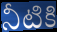
నీటికి